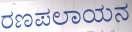
ರಣಪಲಾಯನ